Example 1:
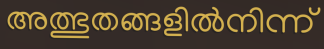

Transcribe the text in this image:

അത്ഭുതങ്ങളിൽനിന്ന്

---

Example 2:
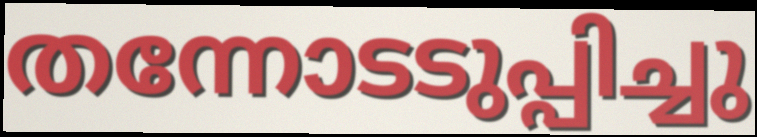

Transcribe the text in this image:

തന്നോടടുപ്പിച്ചു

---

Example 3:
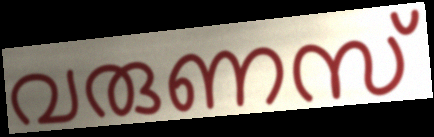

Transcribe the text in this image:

വരുണസ്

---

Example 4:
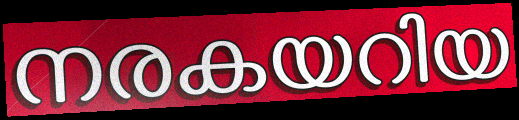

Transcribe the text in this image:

നരകയറിയ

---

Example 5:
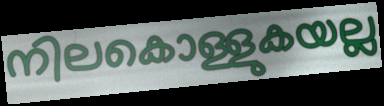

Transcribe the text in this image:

നിലകൊള്ളുകയല്ല